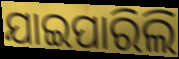
ଯାଇପାରିଲି